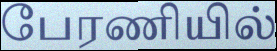
பேரணியில்